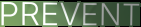
PREVENT